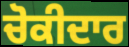
ਚੋਕੀਦਾਰ